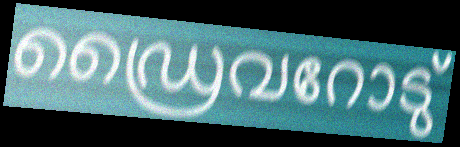
ഡ്രൈവറോടു്